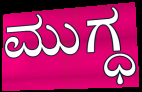
ಮುಗ್ಧ